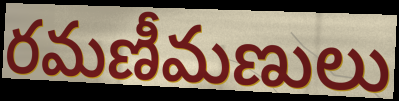
రమణీమణులు